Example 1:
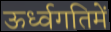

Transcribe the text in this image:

ऊर्ध्वगतिमें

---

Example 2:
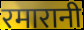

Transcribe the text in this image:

रमारानी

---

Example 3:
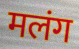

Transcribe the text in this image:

मलंग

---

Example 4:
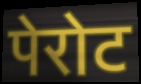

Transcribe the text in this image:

पेरोट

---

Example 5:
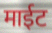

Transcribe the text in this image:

माईट